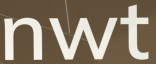
nwt